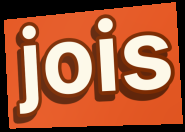
jois